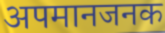
अपमानजनक